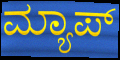
ಮ್ಯಾಪ್